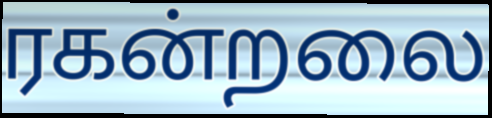
ரகன்றலை